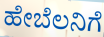
ಹೇಬೆಲನಿಗೆ